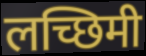
लच्छिमी